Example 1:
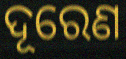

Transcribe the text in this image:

ଦୂରେଣ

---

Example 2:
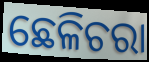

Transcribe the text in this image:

ଛେଳିଚରା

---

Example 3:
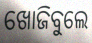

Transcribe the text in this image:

ଖୋଜିବୁଲେ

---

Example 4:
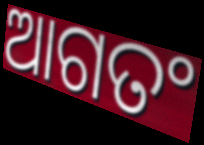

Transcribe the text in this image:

ଆଗତଂ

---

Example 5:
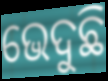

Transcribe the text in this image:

ଭେଦୁଛି